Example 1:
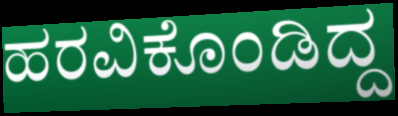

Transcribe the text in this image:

ಹರವಿಕೊಂಡಿದ್ದ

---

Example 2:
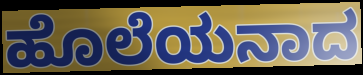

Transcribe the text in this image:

ಹೊಲೆಯನಾದ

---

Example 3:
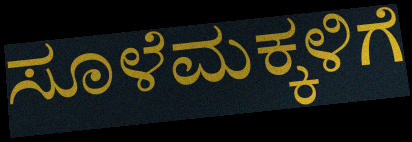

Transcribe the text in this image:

ಸೂಳೆಮಕ್ಕಳಿಗೆ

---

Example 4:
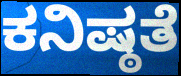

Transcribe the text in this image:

ಕನಿಷ್ಠತೆ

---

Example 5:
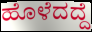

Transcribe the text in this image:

ಹೊಳೆದದ್ದೆ